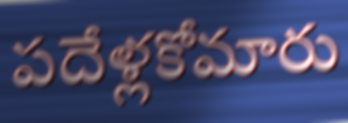
పదేళ్లకోమారు